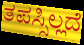
ತಪಸ್ಸಿಲ್ಲದೆ